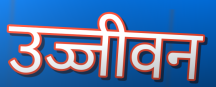
उज्जीवन